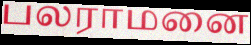
பலராமனை